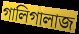
গালিগালাজ